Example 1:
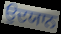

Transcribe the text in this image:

ਉਦਯਾਨ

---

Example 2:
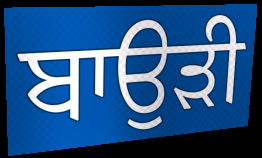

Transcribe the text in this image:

ਬਾਉੜੀ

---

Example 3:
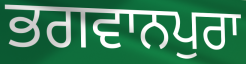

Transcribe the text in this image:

ਭਗਵਾਨਪੁਰਾ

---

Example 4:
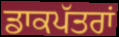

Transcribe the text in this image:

ਡਾਕਪੱਤਰਾਂ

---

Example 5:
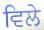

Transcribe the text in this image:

ਵਿਲੇ